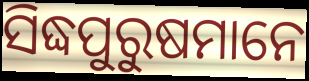
ସିଦ୍ଧପୁରୁଷମାନେ